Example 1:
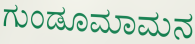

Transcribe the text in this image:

ಗುಂಡೂಮಾಮನ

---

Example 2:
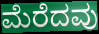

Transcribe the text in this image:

ಮೆರೆದವು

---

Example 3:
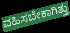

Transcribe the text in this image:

ವಹಿಸಬೇಕಾಗಿತ್ತು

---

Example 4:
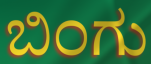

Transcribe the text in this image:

ಬಿಂಗು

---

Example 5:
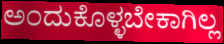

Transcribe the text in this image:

ಅಂದುಕೊಳ್ಳಬೇಕಾಗಿಲ್ಲ